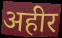
अहीर